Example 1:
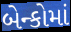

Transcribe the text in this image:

બેન્કોમાં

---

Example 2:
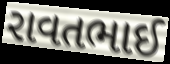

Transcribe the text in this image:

રાવતભાઈ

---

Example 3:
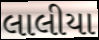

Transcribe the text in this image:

લાલીયા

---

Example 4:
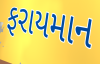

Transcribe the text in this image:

ફરાયમાન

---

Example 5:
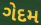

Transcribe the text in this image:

ગેદમ